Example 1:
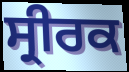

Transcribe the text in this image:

ਸ੍ਰੀਰਕ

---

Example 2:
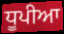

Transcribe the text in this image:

ਧੂਪੀਆ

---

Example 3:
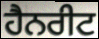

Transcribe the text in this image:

ਹੈਨਰੀਟ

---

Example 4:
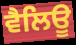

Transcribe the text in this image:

ਵੈਲਿਊ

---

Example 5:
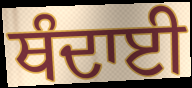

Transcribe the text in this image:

ਥੰਦਾਈ